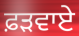
ਫ਼ੜਵਾਏ